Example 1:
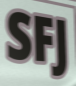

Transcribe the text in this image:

SFJ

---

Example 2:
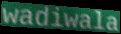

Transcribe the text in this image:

wadiwala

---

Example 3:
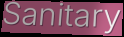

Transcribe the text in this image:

Sanitary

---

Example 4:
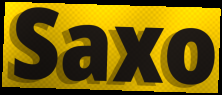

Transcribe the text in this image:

Saxo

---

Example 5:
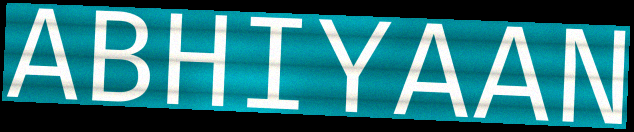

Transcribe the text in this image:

ABHIYAAN